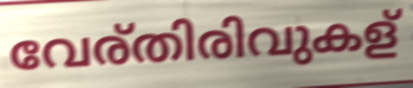
വേര്തിരിവുകള്